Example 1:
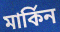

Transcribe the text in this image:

মাৰ্কিন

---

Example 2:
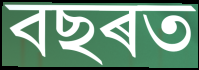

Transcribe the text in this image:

বছৰত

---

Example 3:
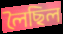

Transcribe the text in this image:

লৈছিল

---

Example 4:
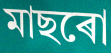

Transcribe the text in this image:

মাছৰো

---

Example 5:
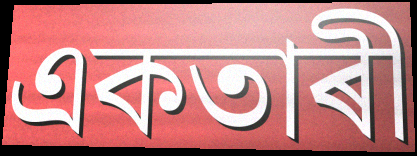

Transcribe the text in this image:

একতাৰী